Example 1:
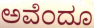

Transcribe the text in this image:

ಅವೆಂದೂ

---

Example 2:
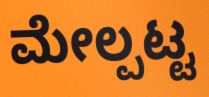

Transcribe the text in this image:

ಮೇಲ್ಪಟ್ಟ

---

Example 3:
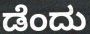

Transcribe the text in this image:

ಡೆಂದು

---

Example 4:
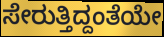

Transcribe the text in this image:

ಸೇರುತ್ತಿದ್ದಂತೆಯೇ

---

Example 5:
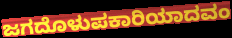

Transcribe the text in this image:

ಜಗದೊಳುಪಕಾರಿಯಾದವಂ